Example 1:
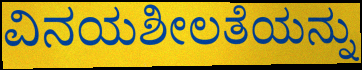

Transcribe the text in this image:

ವಿನಯಶೀಲತೆಯನ್ನು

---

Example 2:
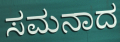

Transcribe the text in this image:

ಸಮನಾದ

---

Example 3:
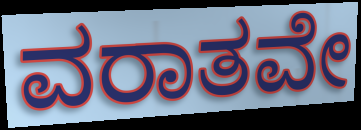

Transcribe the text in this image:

ವರಾತವೇ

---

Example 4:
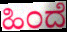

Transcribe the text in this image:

ಹಿಂದೆ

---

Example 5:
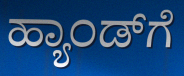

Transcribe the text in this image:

ಹ್ಯಾಂಡ್‌ಗೆ